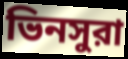
ভিনসুরা